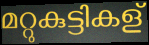
മറ്റുകുട്ടികള്